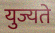
युज्यते